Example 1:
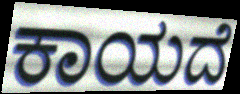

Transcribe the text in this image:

ಕಾಯದೆ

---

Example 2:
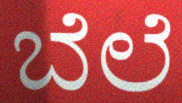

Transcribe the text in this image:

ಬೆಲೆ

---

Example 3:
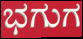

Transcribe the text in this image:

ಭಗುಗ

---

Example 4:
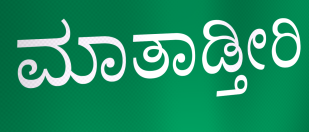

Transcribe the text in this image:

ಮಾತಾಡ್ತೀರಿ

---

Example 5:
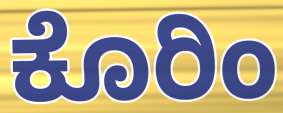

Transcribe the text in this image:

ಕೊರಿಂ